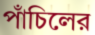
পাঁচিলের